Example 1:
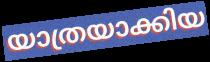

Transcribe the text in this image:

യാത്രയാക്കിയ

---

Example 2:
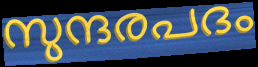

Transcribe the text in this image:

സുന്ദരപദം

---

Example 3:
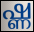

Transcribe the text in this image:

ഷ്ണ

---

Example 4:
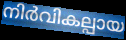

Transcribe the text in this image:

നിർവികല്പായ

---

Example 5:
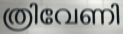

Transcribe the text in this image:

ത്രിവേണി